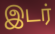
இடர்